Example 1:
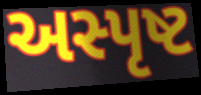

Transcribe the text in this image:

અસ્પૃષ્ટ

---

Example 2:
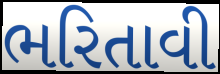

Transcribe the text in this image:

ભરિતાવી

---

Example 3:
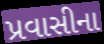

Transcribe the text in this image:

પ્રવાસીના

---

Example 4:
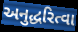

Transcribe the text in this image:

અનુદ્ધરિત્વા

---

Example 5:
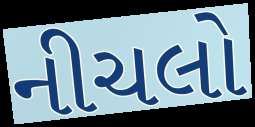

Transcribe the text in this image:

નીચલો